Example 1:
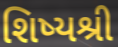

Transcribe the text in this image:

શિષ્યશ્રી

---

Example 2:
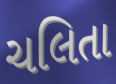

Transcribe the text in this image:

ચલિતા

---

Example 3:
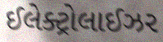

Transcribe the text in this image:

ઈલેક્ટ્રોલાઈઝર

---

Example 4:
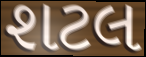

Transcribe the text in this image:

શટલ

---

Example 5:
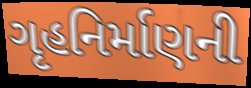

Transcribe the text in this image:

ગૃહનિર્માણની